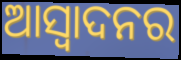
ଆସ୍ବାଦନର